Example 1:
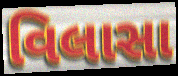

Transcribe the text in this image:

વિલાસા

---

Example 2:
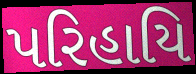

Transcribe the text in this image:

પરિહાયિ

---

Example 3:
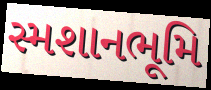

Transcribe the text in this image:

સ્મશાનભૂમિ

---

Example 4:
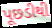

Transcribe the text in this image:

પૂછડીથી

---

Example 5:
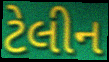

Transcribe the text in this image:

ટેલીન